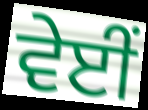
ਵੇਈਂ